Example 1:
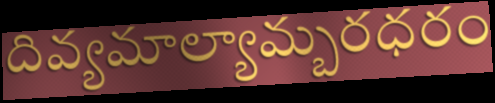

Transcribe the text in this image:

దివ్యమాల్యామ్బరధరం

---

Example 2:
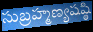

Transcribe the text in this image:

సుబ్రహ్మణ్యషష్ఠి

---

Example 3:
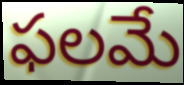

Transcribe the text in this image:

ఫలమే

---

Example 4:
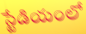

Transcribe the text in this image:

స్టేడియంలో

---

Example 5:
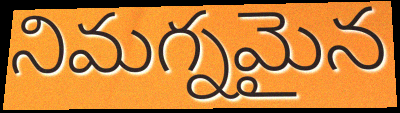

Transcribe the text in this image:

నిమగ్నమైన